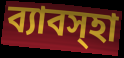
ব্যাবস্হা